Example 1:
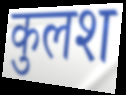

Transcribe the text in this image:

कुलश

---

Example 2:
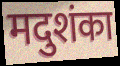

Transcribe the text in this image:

मदुशंका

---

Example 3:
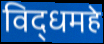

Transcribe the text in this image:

विद्धमहे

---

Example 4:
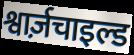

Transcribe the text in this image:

श्वार्ज़चाइल्ड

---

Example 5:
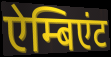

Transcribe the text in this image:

ऐम्बिएंट